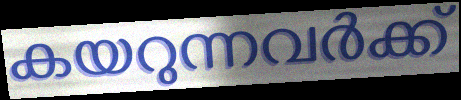
കയറുന്നവർക്ക്